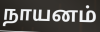
நாயனம்